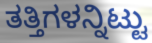
ತತ್ತಿಗಳನ್ನಿಟ್ಟು